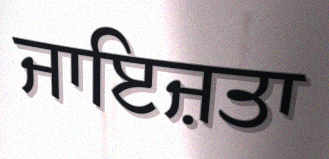
ਜਾਇਜ਼ਤਾ